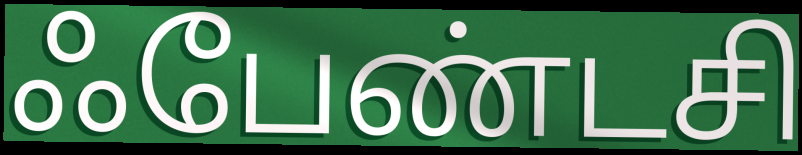
ஃபேண்டசி